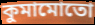
কুমামোতো